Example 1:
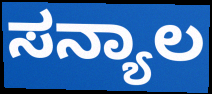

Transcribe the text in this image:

ಸನ್ಯಾಲ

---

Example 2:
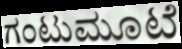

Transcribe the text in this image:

ಗಂಟುಮೂಟೆ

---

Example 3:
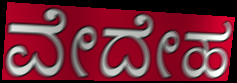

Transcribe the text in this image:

ವೇದೇಹ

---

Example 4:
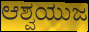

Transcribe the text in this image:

ಆಶ್ವಯುಜ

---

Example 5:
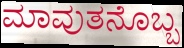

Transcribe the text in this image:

ಮಾವುತನೊಬ್ಬ